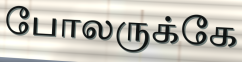
போலருக்கே